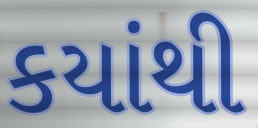
કયાંથી